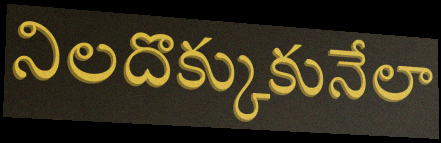
నిలదొక్కుకునేలా